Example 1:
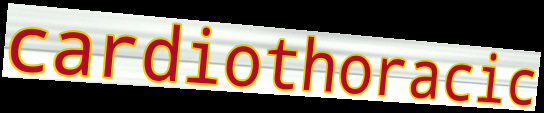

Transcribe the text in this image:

cardiothoracic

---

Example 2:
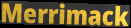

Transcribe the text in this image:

Merrimack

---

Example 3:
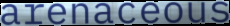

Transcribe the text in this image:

arenaceous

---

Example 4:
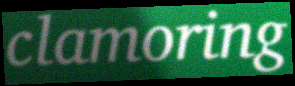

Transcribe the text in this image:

clamoring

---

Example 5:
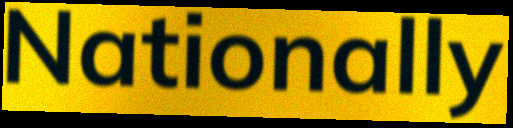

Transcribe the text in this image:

Nationally